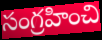
సంగ్రహించి